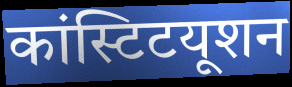
कांस्टिटयूशन